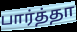
பார்த்தா